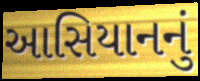
આસિયાનનું